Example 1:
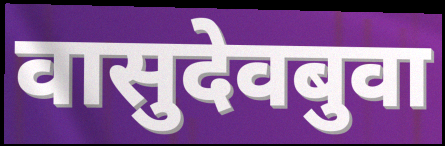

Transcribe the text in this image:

वासुदेवबुवा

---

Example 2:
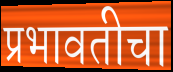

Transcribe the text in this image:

प्रभावतीचा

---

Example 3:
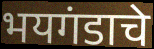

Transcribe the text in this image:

भयगंडाचे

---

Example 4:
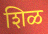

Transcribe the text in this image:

शिळ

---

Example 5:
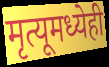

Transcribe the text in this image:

मृत्यूमध्येही